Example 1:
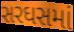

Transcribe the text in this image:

સરઘસમાં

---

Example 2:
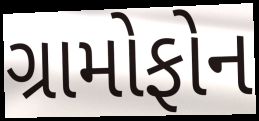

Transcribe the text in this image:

ગ્રામોફોન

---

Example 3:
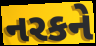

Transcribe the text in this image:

નરકને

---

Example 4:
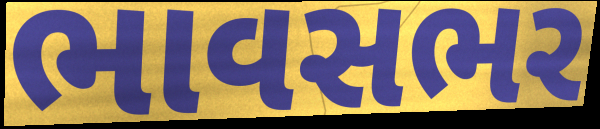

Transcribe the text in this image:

ભાવસભર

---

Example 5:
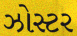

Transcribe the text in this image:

ઝોસ્ટર